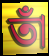
তাঁ